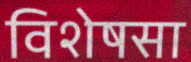
विशेषसा